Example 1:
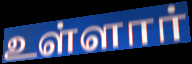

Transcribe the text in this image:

உள்ளார்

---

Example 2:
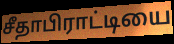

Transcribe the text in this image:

சீதாபிராட்டியை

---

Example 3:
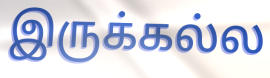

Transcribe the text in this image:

இருக்கல்ல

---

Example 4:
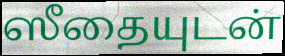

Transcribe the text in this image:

ஸீதையுடன்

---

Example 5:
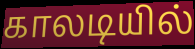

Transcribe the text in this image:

காலடியில்